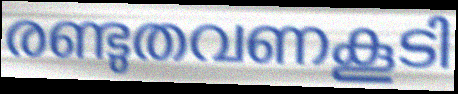
രണ്ടുതവണകൂടി